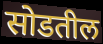
सोडतील